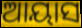
ଆୟାସ